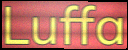
Luffa